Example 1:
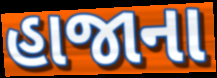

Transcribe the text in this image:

હાજાના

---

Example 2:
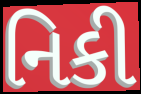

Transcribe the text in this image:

નિકી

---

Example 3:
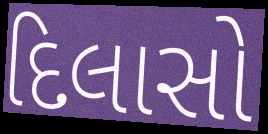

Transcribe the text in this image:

દિલાસો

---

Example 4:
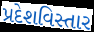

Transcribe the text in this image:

પ્રદેશવિસ્તાર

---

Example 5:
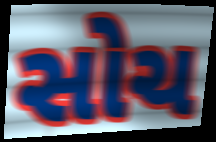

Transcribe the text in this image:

સોચ